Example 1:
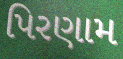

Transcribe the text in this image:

પિરણામ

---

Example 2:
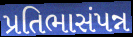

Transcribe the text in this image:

પ્રતિભાસંપન્ન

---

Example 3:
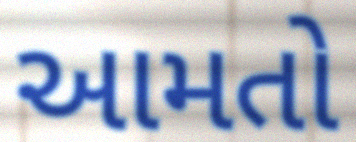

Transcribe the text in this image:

આમતો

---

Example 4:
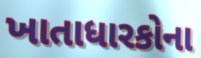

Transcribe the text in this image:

ખાતાધારકોના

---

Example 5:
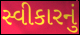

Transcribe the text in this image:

સ્વીકારનું